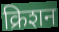
क्रिशन